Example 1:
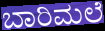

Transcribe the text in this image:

ಬಾರಿಮಲೆ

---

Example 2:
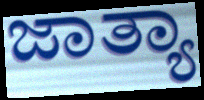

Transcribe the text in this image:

ಜಾತ್ಯಾ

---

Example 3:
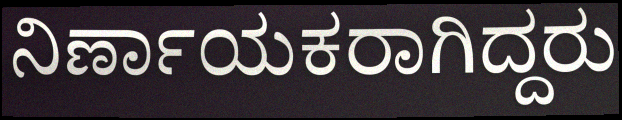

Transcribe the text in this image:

ನಿರ್ಣಾಯಕರಾಗಿದ್ದರು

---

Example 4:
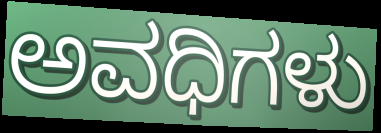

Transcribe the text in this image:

ಅವಧಿಗಳು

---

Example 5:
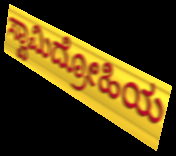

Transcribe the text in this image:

ಸ್ವಾಮಿದ್ರೋಹಿಯ